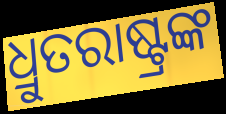
ଧ୍ରୁତରାଷ୍ଟ୍ରଙ୍କ